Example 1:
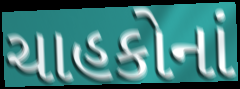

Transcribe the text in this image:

ચાહકોનાં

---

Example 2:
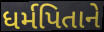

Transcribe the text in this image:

ધર્મપિતાને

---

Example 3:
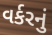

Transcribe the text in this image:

વર્કરનું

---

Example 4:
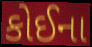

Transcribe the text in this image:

કોઈના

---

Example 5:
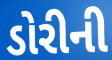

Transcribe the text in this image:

ડોરીની